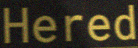
Hered